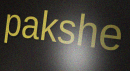
pakshe